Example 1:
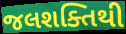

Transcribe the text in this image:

જલશક્તિથી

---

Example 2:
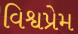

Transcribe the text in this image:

વિશ્વપ્રેમ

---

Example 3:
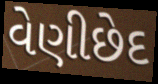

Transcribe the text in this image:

વેણીછેદ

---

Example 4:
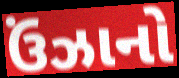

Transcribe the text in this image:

ઉંઝાનો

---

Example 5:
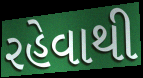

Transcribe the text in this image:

રહેવાથી